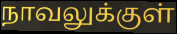
நாவலுக்குள்